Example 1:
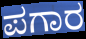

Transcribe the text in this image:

ಪಗಾರ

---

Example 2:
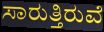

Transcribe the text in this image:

ಸಾರುತ್ತಿರುವೆ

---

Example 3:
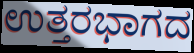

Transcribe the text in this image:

ಉತ್ತರಭಾಗದ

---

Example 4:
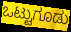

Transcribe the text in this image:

ಒಟ್ಟುಗೂಡು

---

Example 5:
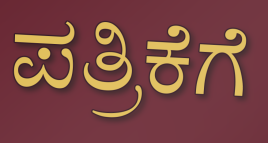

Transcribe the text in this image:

ಪತ್ರಿಕೆಗೆ